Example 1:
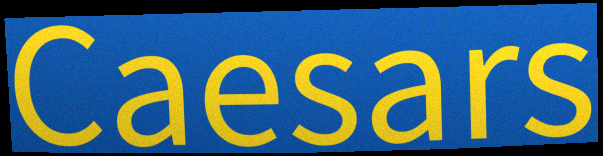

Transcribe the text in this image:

Caesars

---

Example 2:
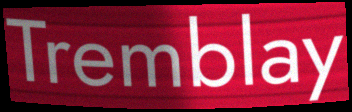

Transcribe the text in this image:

Tremblay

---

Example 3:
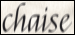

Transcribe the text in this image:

chaise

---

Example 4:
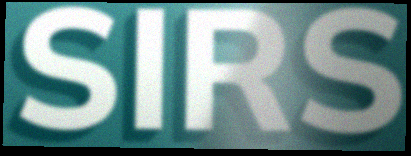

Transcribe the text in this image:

SIRS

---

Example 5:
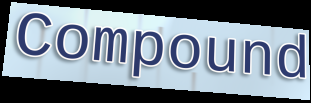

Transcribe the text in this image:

Compound